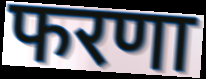
फरणा